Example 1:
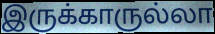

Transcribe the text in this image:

இருக்காருல்லா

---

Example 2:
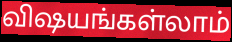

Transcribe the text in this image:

விஷயங்கள்லாம்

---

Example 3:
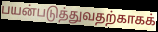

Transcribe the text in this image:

பயன்படுத்துவதற்காகக்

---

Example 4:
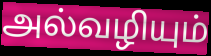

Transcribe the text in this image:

அல்வழியும்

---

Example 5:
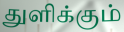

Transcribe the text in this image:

துளிக்கும்